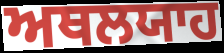
ਅਥਲਯਾਹ